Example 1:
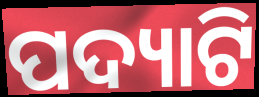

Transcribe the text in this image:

ପଦ୍ୟାଟି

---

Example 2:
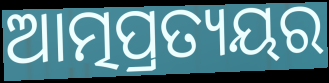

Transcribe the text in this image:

ଆତ୍ମପ୍ରତ୍ୟୟର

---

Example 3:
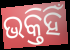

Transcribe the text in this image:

ଭକ୍ତିହିଁ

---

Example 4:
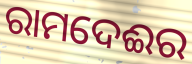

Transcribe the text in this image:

ରାମଦେଈର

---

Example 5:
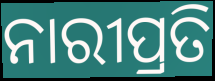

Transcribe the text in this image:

ନାରୀପ୍ରତି